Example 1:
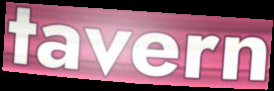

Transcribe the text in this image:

tavern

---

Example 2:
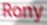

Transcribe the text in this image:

Rony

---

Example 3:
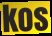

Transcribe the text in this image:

kos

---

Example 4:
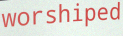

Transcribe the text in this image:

worshiped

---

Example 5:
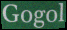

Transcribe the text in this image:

Gogol